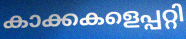
കാക്കകളെപ്പറ്റി